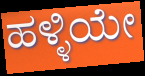
ಹಳ್ಳಿಯೇ